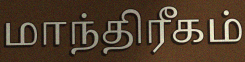
மாந்திரீகம்